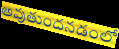
అవుతుందనడంలో